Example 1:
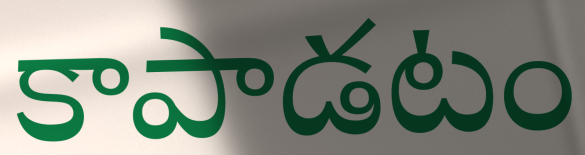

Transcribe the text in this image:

కాపాడటం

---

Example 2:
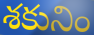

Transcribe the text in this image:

శకునిం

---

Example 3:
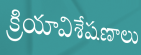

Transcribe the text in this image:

క్రియావిశేషణాలు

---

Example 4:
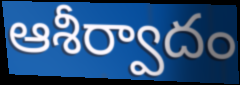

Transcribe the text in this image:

ఆశీర్వాదం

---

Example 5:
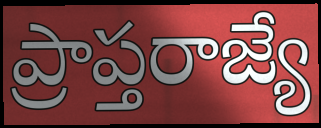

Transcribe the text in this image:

ప్రాప్తరాజ్యే